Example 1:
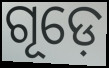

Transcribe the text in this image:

ଗୂଡ଼େ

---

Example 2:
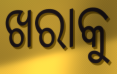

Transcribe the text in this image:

ଖରାକୁ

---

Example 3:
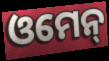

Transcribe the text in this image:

ଓମେନ୍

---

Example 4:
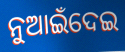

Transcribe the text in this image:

ନୁଆଇଁଦେଇ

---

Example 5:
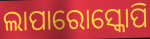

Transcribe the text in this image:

ଲାପାରୋସ୍କୋପି